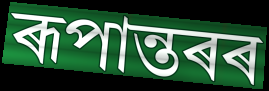
ৰূপান্তৰৰ